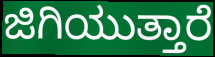
ಜಿಗಿಯುತ್ತಾರೆ